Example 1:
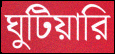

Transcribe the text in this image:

ঘুটিয়ারি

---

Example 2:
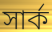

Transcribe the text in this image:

সার্ক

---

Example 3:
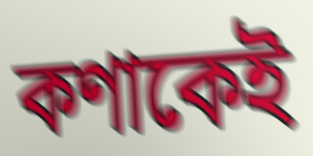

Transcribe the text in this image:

কণাকেই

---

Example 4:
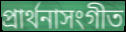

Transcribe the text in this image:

প্রার্থনাসংগীত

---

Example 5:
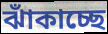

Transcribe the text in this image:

ঝাঁকাচ্ছে